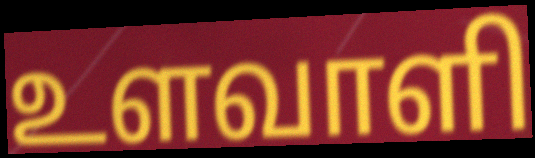
உளவாளி